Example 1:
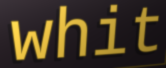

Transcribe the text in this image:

whit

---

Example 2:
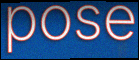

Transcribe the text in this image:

pose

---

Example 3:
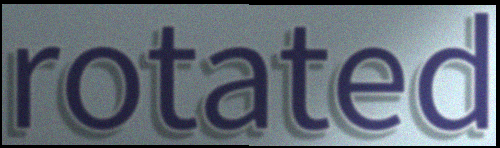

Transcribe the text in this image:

rotated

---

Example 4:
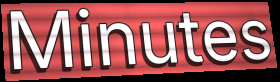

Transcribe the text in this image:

Minutes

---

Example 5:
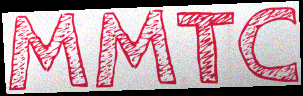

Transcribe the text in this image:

MMTC